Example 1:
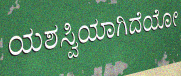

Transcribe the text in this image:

ಯಶಸ್ವಿಯಾಗಿದೆಯೋ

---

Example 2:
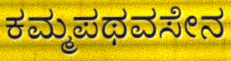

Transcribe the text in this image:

ಕಮ್ಮಪಥವಸೇನ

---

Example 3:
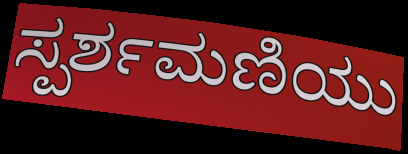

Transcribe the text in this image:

ಸ್ಪರ್ಶಮಣಿಯು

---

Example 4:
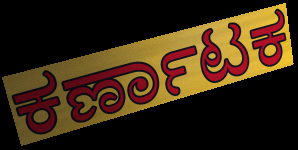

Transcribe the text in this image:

ಕರ್ಣಾಟಕ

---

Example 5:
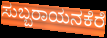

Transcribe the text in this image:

ಸುಬ್ಬರಾಯನಕೆರೆ